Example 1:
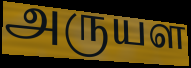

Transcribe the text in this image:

அருயள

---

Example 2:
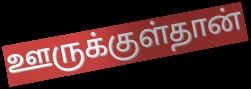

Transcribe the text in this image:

ஊருக்குள்தான்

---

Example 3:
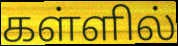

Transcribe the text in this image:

கள்ளில்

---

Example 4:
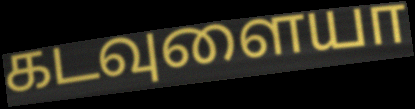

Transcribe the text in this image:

கடவுளையா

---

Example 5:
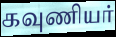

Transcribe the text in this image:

கவுணியர்